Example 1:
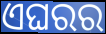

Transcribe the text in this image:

ଏଘରର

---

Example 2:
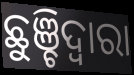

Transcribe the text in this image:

ଛୁଞ୍ଚିଦ୍ଵାରା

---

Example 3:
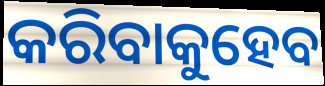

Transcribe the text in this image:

କରିବାକୁହେବ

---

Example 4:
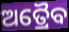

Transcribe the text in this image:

ଅତ୍ରୈବ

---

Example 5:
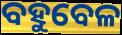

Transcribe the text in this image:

ବହୁବେଳ